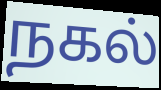
நகல்